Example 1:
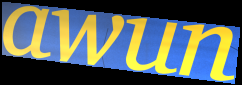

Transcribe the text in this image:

awun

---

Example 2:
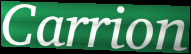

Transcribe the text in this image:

Carrion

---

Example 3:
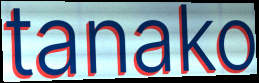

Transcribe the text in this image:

tanako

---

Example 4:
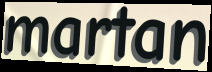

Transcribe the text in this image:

martan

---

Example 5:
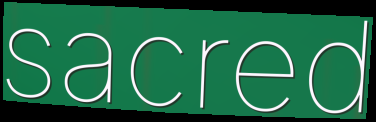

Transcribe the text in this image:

sacred